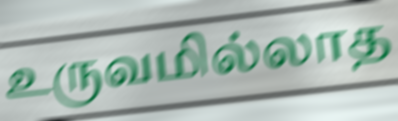
உருவமில்லாத